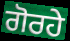
ਗੋਰਹੇ